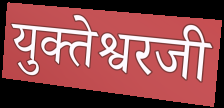
युक्तेश्वरजी